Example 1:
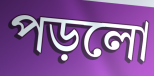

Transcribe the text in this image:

পড়লো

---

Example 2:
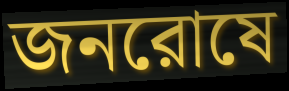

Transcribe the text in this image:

জনরোষে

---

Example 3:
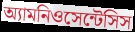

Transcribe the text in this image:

অ্যামনিওসেন্টেসিস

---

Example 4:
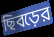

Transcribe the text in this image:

ছিবড়ের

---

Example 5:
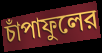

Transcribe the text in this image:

চাঁপাফুলের